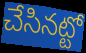
చేసినట్టో